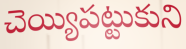
చెయ్యిపట్టుకుని